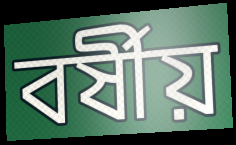
বর্ষীয়